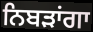
ਨਿਬੜਾਂਗਾ